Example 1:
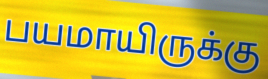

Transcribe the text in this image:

பயமாயிருக்கு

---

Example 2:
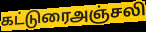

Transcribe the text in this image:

கட்டுரைஅஞ்சலி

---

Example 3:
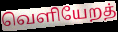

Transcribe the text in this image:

வெளியேறத்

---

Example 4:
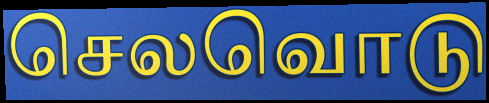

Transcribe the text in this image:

செலவொடு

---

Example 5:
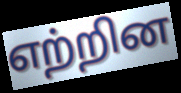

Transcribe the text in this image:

எற்றின